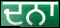
ਦਨਾ